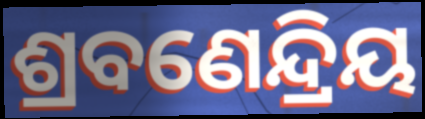
ଶ୍ରବଣେନ୍ଦ୍ରିୟ